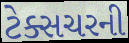
ટેક્સચરની